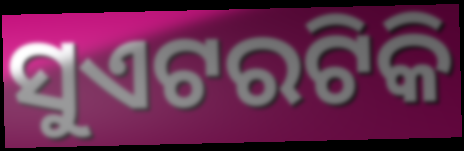
ସୁଏଟରଟିକି